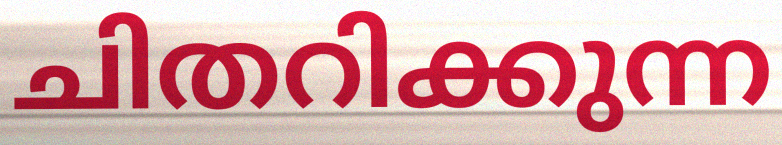
ചിതറിക്കുന്ന